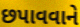
છપાવવાને